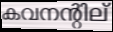
കവനന്റില്